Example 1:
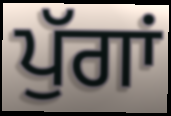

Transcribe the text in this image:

ਪੁੱਗਾਂ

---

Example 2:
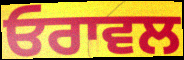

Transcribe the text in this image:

ਓਰਾਵਲ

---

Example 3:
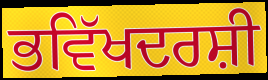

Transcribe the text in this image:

ਭਵਿੱਖਦਰਸ਼ੀ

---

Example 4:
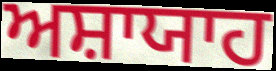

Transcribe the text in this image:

ਅਸ਼ਾਯਾਹ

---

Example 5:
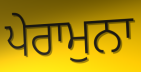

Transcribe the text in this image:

ਪੇਰਾਮੁਨਾ